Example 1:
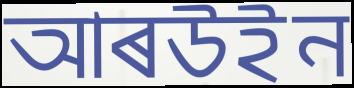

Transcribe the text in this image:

আৰউইন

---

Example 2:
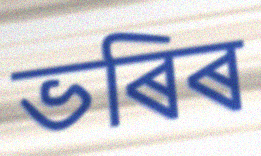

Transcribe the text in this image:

ভৰিৰ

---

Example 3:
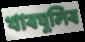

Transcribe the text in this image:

খাৰঘুলিৰ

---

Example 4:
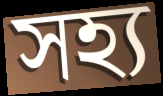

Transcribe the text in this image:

সহ্য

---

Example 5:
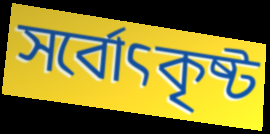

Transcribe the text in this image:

সৰ্বোৎকৃষ্ট